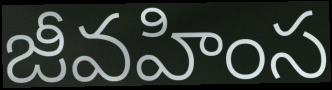
జీవహింస